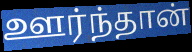
ஊர்ந்தான்